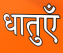
धातुएँ